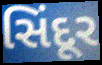
સિંદૂર